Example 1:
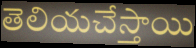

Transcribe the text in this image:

తెలియచేస్తాయి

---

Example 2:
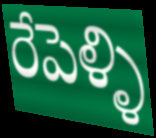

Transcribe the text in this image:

రేపెళ్ళి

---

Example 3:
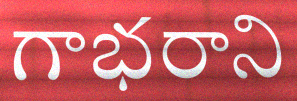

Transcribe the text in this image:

గాభరాని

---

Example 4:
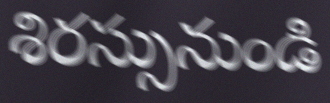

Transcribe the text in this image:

శిరస్సునుండి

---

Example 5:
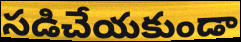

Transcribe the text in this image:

సడిచేయకుండా